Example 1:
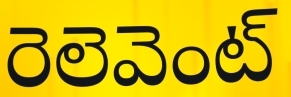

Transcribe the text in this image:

రెలెవెంట్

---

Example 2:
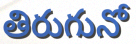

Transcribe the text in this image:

తిరుగునో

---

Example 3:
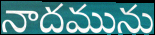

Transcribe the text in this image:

నాదమును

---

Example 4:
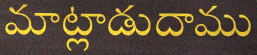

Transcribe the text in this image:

మాట్లాడుదాము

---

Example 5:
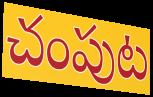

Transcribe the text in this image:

చంపుట